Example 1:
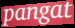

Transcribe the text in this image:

pangat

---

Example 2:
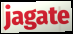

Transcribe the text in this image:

jagate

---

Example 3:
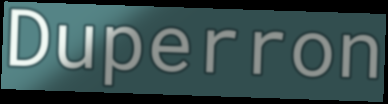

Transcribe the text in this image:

Duperron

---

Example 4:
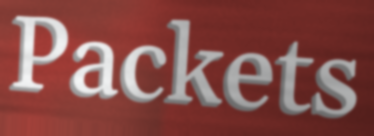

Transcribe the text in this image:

Packets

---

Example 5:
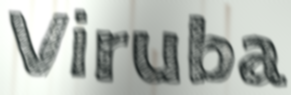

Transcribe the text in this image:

Viruba